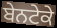
ਬੇਨਟੇਕੇ